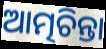
ଆତ୍ମଚିନ୍ତା